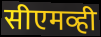
सीएमव्ही